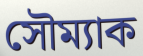
সৌম্যাক